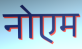
नोएम